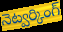
నెట్వర్కింగ్